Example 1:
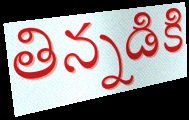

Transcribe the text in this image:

తిన్నడికి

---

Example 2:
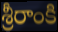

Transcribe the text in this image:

శ్రీరాంకి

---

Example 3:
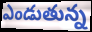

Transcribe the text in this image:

ఎండుతున్న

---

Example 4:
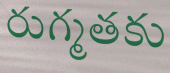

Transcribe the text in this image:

రుగ్మతకు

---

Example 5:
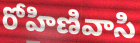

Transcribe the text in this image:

రోహిణివాసి